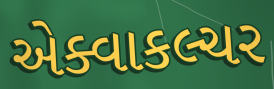
એક્વાકલ્ચર